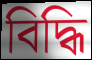
বিদ্ধি